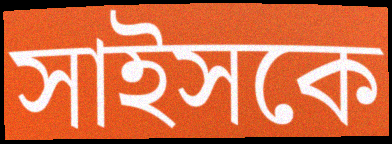
সাইসকে